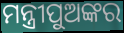
ମନ୍ତ୍ରୀପୁଅଙ୍କର